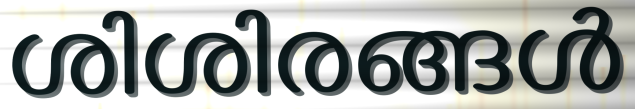
ശിശിരങ്ങൾ